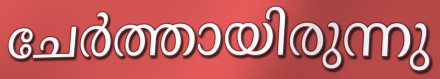
ചേർത്തായിരുന്നു